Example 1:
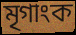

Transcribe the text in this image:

মৃগাংক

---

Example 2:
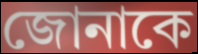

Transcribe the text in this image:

জোনাকে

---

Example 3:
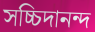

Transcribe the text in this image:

সচ্চিদানন্দ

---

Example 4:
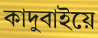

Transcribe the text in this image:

কাদুবাইয়ে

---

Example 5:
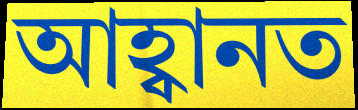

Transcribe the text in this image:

আহ্বানত